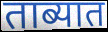
ताब्यात